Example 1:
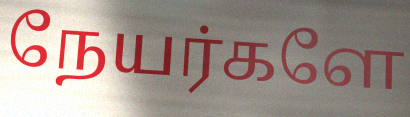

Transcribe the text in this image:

நேயர்களே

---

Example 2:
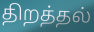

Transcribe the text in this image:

திறத்தல்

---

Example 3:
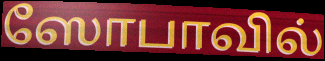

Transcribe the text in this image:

ஸோபாவில்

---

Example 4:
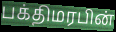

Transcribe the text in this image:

பக்திமரபின்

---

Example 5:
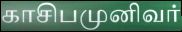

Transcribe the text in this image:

காசிபமுனிவர்